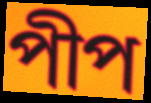
পীপ